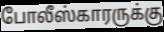
போலீஸ்காரருக்கு